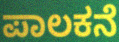
ಪಾಲಕನೆ